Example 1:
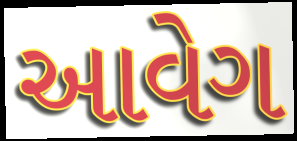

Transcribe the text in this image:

આવેગ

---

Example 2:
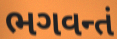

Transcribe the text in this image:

ભગવન્તં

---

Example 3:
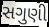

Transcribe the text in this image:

સગુણી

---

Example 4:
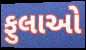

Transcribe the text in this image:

ફુલાઓ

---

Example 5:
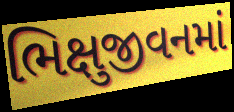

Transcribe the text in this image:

ભિક્ષુજીવનમાં